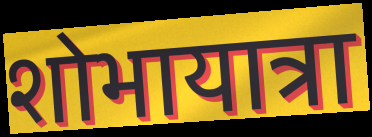
शोभायात्रा